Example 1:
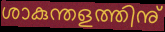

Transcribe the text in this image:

ശാകുന്തളത്തിനു്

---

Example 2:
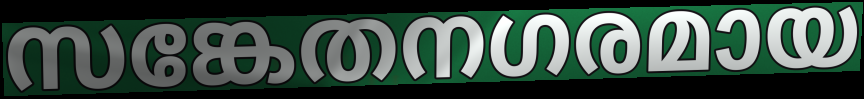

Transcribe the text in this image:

സങ്കേതനഗരമായ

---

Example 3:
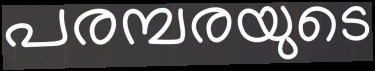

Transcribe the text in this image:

പരമ്പരയുടെ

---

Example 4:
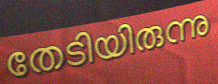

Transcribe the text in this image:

തേടിയിരുന്നു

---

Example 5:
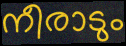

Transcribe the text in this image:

നീരാടും